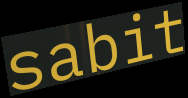
sabit